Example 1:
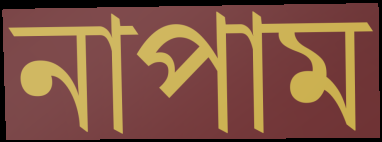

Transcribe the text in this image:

নাপাম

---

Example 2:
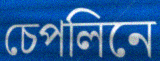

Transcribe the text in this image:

চেপলিনে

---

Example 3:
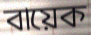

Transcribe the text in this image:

বায়েক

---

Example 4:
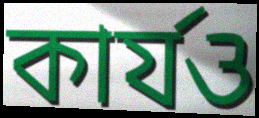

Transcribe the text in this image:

কাৰ্যও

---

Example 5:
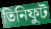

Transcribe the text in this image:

তিনিফুট